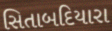
સિતાબદિયારા